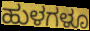
ಹುಳಗಳೂ